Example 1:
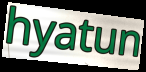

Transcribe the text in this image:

hyatun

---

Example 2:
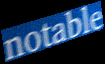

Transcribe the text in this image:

notable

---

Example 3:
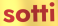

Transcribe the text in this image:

sotti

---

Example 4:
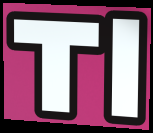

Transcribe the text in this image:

Tl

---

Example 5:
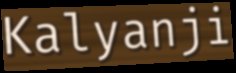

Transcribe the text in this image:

Kalyanji